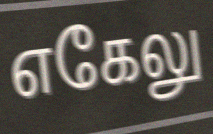
எகேலு